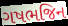
ગષભજિન